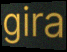
gira